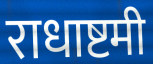
राधाष्टमी